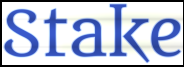
Stake